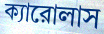
ক্যারোলাস